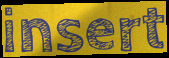
insert